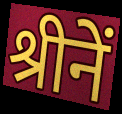
श्रीनें